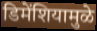
डिमेंशियामुळे